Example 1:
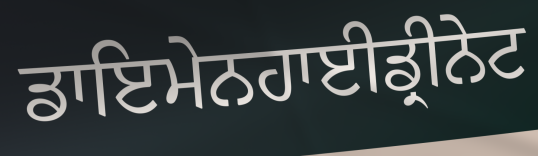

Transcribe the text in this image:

ਡਾਇਮੇਨਹਾਈਡ੍ਰੀਨੇਟ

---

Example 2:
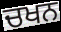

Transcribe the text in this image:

ਚਖਨ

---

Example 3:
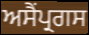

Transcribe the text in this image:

ਅਸੈਂਪ੍ਰਗਸ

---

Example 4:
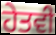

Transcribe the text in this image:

ਹੇਤਵੀ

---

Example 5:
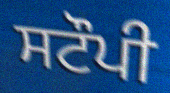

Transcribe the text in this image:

ਸਟੌਪੀ